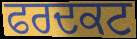
ਫਰਦਕਟ